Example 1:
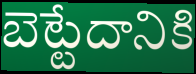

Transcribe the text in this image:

బెట్టేదానికి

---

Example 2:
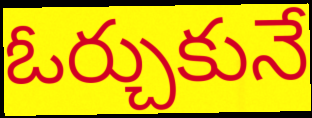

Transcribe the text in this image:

ఓర్చుకునే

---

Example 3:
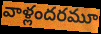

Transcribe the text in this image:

వాళ్లందరమూ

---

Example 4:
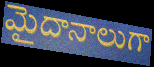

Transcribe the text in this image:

మైదానాలుగా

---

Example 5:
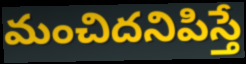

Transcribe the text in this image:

మంచిదనిపిస్తే